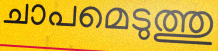
ചാപമെടുത്തു